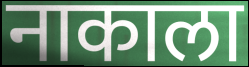
नाकाला